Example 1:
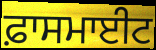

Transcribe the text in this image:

ਫ਼ਾਸਮਾਈਟ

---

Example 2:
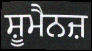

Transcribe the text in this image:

ਸ਼ੂਮੈਨਜ਼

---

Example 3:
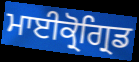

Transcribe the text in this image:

ਮਾਈਕ੍ਰੋਗ੍ਰਿਡ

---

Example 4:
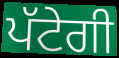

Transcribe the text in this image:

ਪੱਟੇਗੀ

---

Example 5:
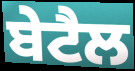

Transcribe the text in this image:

ਬੇਟੈਲ